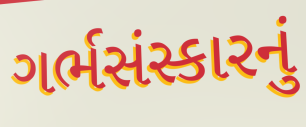
ગર્ભસંસ્કારનું